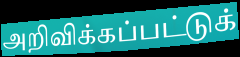
அறிவிக்கப்பட்டுக்